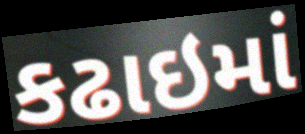
કઢાઇમાં